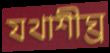
যথাশীঘ্র